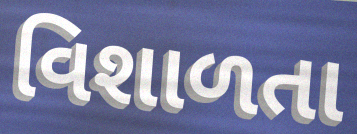
વિશાળતા